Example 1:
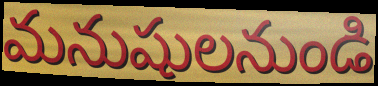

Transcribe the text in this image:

మనుషులనుండి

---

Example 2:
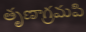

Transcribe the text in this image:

తృణాగ్రమపి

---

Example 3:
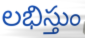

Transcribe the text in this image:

లభిస్తుం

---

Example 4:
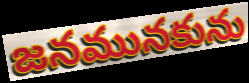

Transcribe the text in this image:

జనమునకును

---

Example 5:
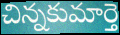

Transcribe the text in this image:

చిన్నకుమార్తె